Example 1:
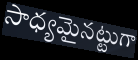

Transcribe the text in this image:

సాధ్యమైనట్టుగా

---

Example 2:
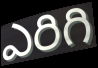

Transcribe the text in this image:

ఎరిగి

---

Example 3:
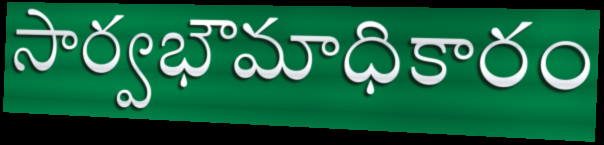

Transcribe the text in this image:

సార్వభౌమాధికారం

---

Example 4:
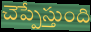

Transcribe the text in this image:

చెప్పేస్తుంది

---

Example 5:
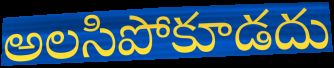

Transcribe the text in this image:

అలసిపోకూడదు